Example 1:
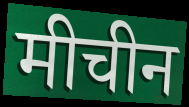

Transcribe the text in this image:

मीचीन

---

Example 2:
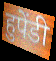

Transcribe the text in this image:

हुपेंडी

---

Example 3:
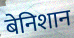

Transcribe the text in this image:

बेनिशान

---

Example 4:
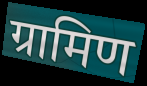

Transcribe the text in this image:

ग्रामिण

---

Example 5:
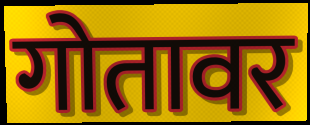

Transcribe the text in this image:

गोतावर